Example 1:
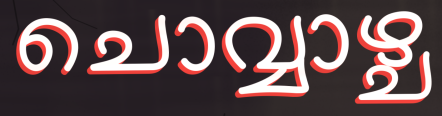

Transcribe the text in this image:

ചൊവ്വാഴ്ച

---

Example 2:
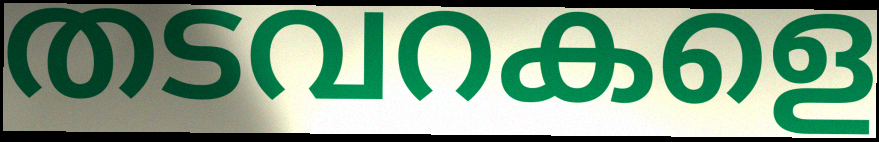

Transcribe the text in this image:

തടവറകളെ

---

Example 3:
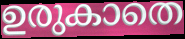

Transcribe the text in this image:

ഉരുകാതെ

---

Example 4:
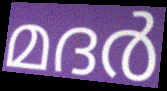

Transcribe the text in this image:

മദർ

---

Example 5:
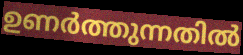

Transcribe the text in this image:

ഉണർത്തുന്നതിൽ